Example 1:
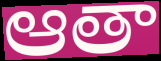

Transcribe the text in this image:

ఆతా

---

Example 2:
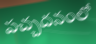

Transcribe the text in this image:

పచ్చదనంలో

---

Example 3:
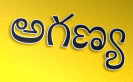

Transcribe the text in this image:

అగణ్య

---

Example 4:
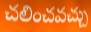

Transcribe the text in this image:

చలించవచ్చు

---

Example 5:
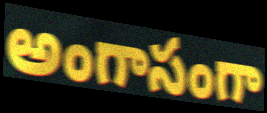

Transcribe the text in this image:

అంగాసంగా